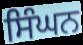
ਸਿੰਘਨ